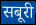
सबूरी